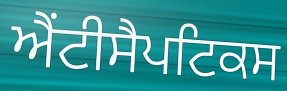
ਐਂਟੀਸੈਪਟਿਕਸ